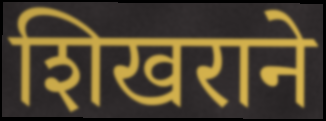
शिखराने